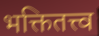
भक्तितत्त्व